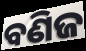
ବଣିଜ